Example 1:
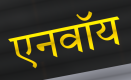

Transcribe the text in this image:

एनवॉय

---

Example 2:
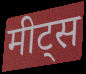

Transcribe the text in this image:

मीट्स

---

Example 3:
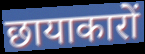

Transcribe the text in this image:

छायाकारों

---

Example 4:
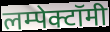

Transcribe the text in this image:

लम्पेक्टॉमी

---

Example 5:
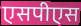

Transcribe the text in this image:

एसपीएस